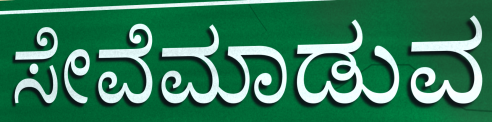
ಸೇವೆಮಾಡುವ